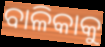
ବାଳିକାକୁ